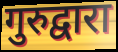
गुरुद्वारा